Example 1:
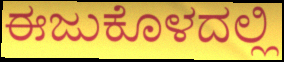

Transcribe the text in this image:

ಈಜುಕೊಳದಲ್ಲಿ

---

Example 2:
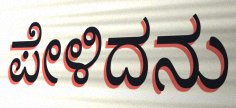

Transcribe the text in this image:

ಪೇಳಿದನು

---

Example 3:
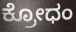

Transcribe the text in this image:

ಕ್ರೋಧಂ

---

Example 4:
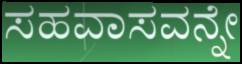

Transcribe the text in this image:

ಸಹವಾಸವನ್ನೇ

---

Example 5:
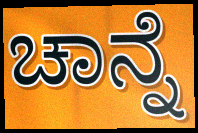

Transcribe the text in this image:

ಚಾನ್ನೆ